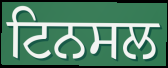
ਟਿਨਸਲ